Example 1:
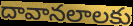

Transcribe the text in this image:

దావానలాలకు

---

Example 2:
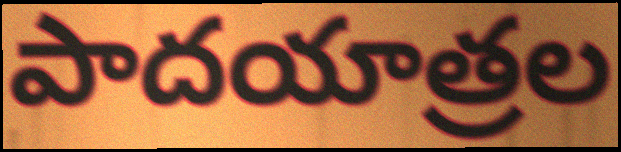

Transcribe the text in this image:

పాదయాత్రల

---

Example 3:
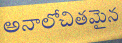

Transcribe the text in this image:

అనాలోచితమైన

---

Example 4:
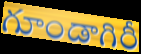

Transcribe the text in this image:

గూండాగిరీ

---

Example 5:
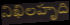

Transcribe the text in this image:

నిఖిలహృది